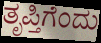
ತೃಪ್ತಿಗೆಂದು